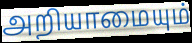
அறியாமையும்